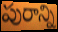
పురాన్ని